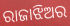
ରାଜାଝିଅର